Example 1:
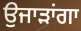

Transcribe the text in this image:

ਉਜਾੜਾਂਗਾ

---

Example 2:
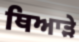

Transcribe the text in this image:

ਥਿਆੜੇ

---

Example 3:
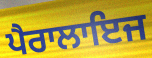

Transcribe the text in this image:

ਪੈਰਾਲਾਇਜ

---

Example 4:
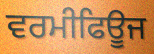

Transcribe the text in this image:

ਵਰਮੀਫਿਊਜ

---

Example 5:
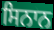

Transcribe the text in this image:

ਸਿਨਾਨ